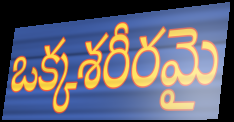
ఒక్కశరీరమై